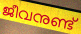
ജീവനുണ്ട്